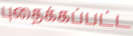
புதைக்கப்பட்ட